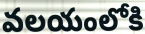
వలయంలోకి